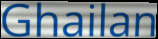
Ghailan